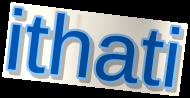
ithati